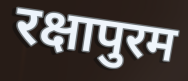
रक्षापुरम